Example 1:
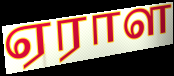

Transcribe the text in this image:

ஏராள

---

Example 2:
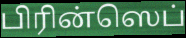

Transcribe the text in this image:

பிரின்ஸெப்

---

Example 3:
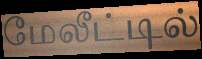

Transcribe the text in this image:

மேலீட்டில்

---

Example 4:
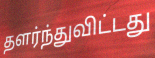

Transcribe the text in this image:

தளர்ந்துவிட்டது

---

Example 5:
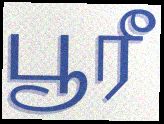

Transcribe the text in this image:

பூரீ